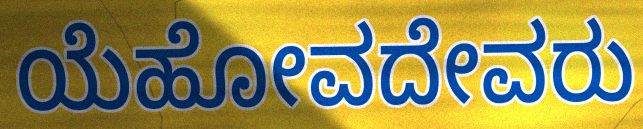
ಯೆಹೋವದೇವರು